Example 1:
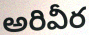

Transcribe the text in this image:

అరివీర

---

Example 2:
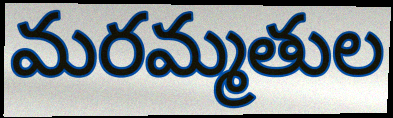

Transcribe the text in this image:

మరమ్మతుల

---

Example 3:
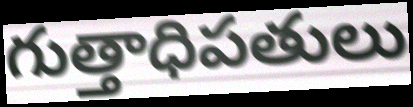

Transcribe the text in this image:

గుత్తాధిపతులు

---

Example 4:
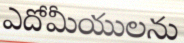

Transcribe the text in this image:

ఎదోమీయులను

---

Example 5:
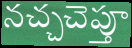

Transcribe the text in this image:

నచ్చచెప్తూ